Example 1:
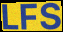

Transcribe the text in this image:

LFS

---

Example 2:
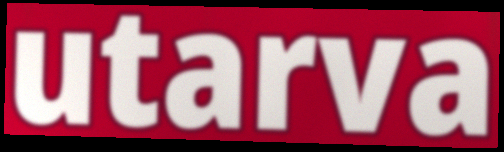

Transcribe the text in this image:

utarva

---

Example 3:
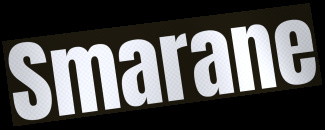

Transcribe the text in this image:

Smarane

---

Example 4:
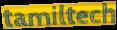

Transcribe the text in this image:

tamiltech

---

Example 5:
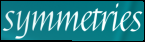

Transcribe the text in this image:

symmetries